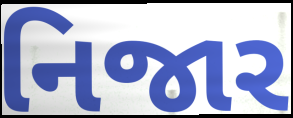
નિજાર